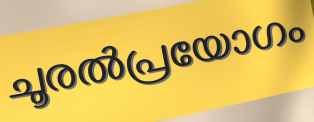
ചൂരൽപ്രയോഗം